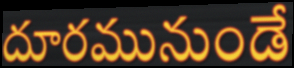
దూరమునుండే